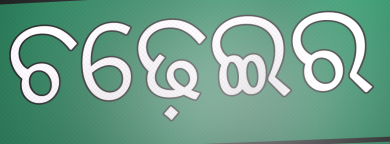
ଚଢ଼େଇର